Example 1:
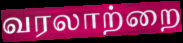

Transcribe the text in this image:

வரலாற்றை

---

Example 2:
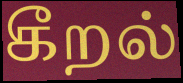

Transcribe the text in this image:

கீறல்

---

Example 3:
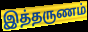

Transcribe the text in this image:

இத்தருணம்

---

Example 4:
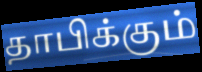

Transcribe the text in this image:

தாபிக்கும்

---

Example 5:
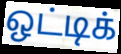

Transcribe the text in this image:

ஒட்டிக்